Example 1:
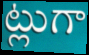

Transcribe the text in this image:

ట్లుగా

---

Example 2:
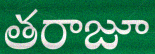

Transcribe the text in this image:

తరాజూ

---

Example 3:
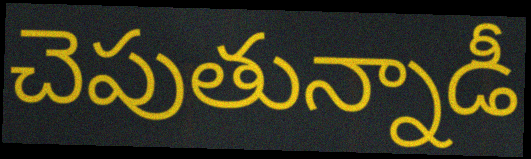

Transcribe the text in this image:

చెపుతున్నాడీ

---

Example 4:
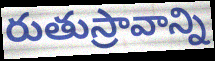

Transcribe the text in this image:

రుతుస్రావాన్ని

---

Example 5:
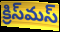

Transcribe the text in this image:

క్రిస్‌మస్